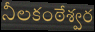
నీలకంఠేశ్వర